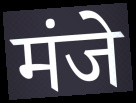
मंजे